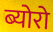
ब्योरो